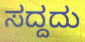
ಸದ್ದದು